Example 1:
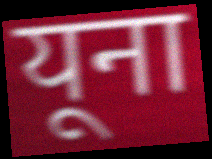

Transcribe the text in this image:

यूना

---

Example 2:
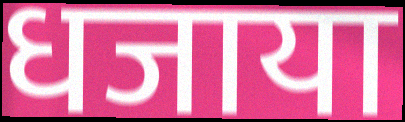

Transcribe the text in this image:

धजाया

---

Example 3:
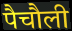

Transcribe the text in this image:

पैचौली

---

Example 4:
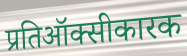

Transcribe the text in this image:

प्रतिऑक्सीकारक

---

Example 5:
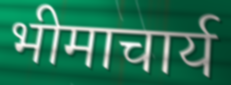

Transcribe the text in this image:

भीमाचार्य